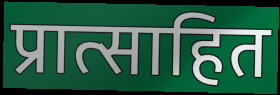
प्रात्साहित